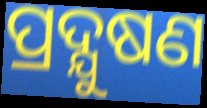
ପ୍ରଦ୍ଯୁଷଣ